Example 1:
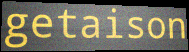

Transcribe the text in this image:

getaison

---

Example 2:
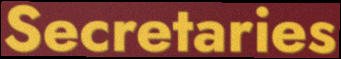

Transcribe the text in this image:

Secretaries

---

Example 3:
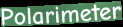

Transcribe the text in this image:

Polarimeter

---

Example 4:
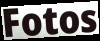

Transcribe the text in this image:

Fotos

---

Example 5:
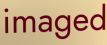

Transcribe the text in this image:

imaged